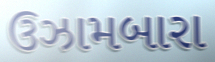
ઉઝામબારા